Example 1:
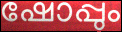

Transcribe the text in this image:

ഷോപ്പും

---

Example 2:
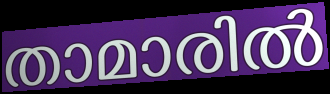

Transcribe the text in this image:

താമാരിൽ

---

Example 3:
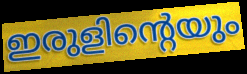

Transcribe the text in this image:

ഇരുളിന്റെയും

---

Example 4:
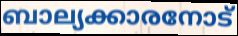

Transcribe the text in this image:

ബാല്യക്കാരനോട്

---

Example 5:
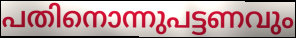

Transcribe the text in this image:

പതിനൊന്നുപട്ടണവും